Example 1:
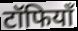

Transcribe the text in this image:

टॉफियाँ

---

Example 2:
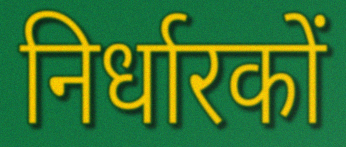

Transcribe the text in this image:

निर्धारकों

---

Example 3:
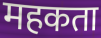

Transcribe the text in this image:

महकता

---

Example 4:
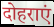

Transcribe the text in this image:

दोहराएं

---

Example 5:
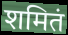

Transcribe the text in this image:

शमितं